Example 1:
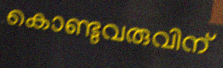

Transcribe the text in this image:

കൊണ്ടുവരുവിന്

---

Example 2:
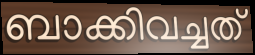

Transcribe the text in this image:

ബാക്കിവച്ചത്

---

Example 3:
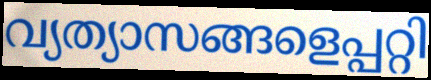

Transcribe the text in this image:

വ്യത്യാസങ്ങളെപ്പറ്റി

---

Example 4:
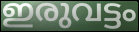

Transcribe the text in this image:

ഇരുവട്ടം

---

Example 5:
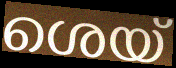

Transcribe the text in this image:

ശെയ്